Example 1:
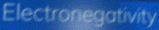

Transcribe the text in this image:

Electronegativity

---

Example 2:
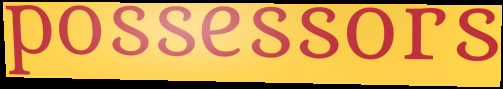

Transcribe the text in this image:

possessors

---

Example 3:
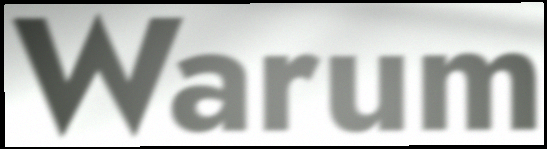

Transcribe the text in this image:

Warum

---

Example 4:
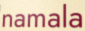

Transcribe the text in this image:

namala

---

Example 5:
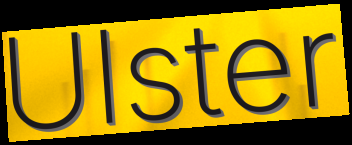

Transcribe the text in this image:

Ulster